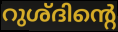
റുശ്ദിന്റെ